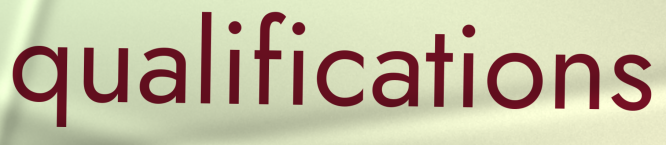
qualifications